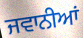
ਜਵਾਨੀਆਂ